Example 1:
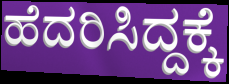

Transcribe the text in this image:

ಹೆದರಿಸಿದ್ದಕ್ಕೆ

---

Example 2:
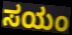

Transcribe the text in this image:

ಸಯಂ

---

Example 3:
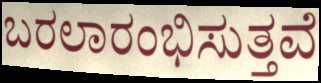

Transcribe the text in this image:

ಬರಲಾರಂಭಿಸುತ್ತವೆ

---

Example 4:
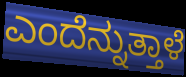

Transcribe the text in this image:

ಎಂದೆನ್ನುತ್ತಾಳೆ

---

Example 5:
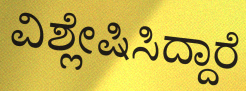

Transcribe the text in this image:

ವಿಶ್ಲೇಷಿಸಿದ್ದಾರೆ